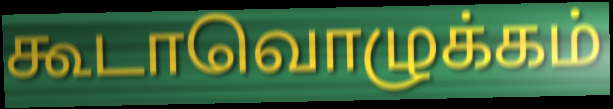
கூடாவொழுக்கம்